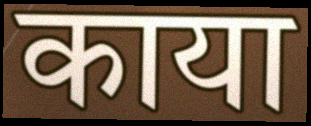
काया